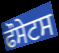
ਫੌਸੇਟਸ